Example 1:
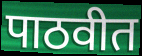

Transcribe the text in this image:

पाठवीत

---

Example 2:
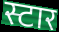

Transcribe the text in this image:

स्टार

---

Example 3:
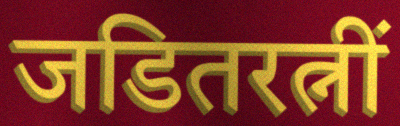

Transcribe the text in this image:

जडितरत्नीं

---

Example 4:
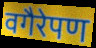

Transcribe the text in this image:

वगैरेपण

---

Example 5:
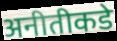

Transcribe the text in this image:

अनीतीकडे